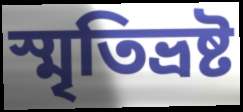
স্মৃতিভ্রষ্ট